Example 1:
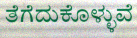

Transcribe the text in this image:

ತೆಗೆದುಕೊಳ್ಳುವೆ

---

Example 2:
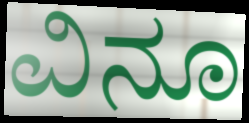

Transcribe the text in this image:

ವಿನೂ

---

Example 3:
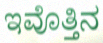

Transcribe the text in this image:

ಇವೊತ್ತಿನ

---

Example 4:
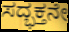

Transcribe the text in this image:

ಸದ್ಭಕ್ತನೇ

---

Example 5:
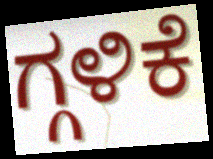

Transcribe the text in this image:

ಗ್ಗಳಿಕೆ